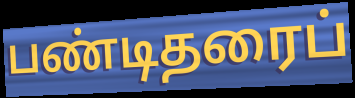
பண்டிதரைப்